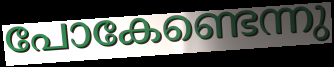
പോകേണ്ടെന്നു